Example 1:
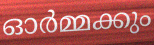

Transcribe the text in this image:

ഓർമ്മക്കും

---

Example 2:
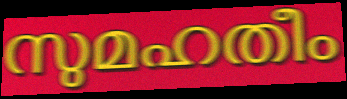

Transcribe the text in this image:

സുമഹതീം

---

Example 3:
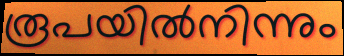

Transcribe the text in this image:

രൂപയിൽനിന്നും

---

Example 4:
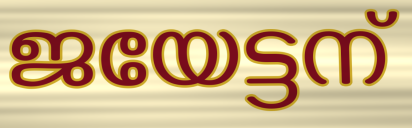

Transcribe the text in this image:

ജയേട്ടന്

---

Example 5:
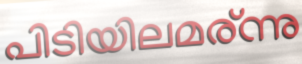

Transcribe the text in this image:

പിടിയിലമര്ന്നു